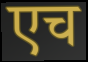
एच